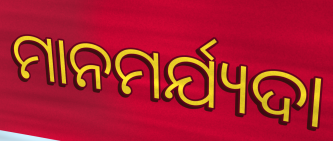
ମାନମର୍ଯ୍ୟଦା